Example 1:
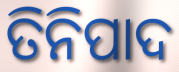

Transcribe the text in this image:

ତିନିପାଦ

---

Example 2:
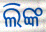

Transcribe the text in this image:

ଲିଙ୍କ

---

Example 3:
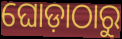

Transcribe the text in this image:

ଘୋଡ଼ାଠାରୁ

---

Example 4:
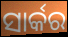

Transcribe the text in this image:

ସାର୍କର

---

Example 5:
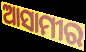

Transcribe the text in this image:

ଆସାମୀର